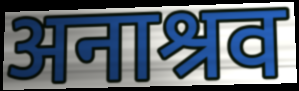
अनाश्रव